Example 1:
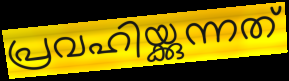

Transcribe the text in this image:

പ്രവഹിയ്ക്കുന്നത്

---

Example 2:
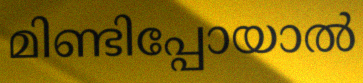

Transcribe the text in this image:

മിണ്ടിപ്പോയാൽ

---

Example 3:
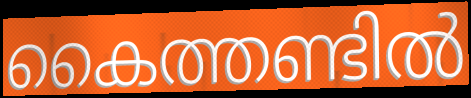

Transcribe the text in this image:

കൈത്തണ്ടിൽ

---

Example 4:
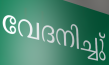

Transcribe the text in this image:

വേദനിച്ചു്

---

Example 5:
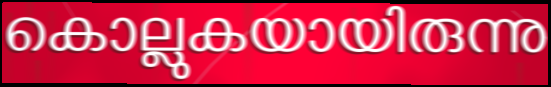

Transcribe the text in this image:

കൊല്ലുകയായിരുന്നു